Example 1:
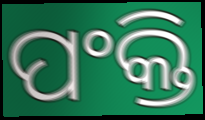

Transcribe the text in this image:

ପଂକ୍ତି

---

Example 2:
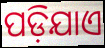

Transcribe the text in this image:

ପଡ଼ିଯାଏ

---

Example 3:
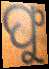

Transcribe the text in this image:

ଫୁ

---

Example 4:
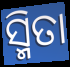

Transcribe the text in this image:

ସ୍ମିତା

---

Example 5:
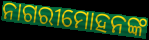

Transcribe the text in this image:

ନାଗରୀମୋହନଙ୍କ